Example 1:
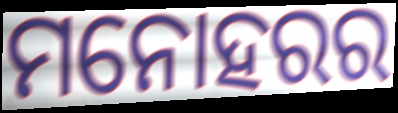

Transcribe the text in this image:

ମନୋହରର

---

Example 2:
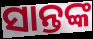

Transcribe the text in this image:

ସାନ୍ତଙ୍କ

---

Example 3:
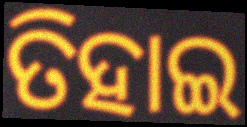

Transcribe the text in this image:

ତିହାଇ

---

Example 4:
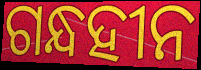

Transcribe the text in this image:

ଗନ୍ଧହୀନ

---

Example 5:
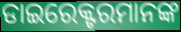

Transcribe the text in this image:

ଡାଇରେକ୍ଟରମାନଙ୍କ